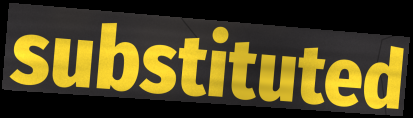
substituted